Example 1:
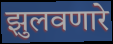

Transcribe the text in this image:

झुलवणारे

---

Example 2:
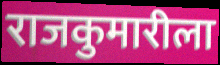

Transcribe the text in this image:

राजकुमारीला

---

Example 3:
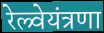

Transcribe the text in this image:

रेल्वेयंत्रणा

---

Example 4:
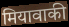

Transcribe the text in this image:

मियावाकी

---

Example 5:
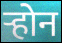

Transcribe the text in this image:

र्‍होन